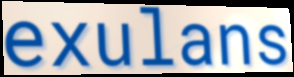
exulans